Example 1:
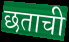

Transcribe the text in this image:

छताची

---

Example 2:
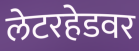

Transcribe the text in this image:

लेटरहेडवर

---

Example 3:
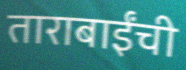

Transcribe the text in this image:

ताराबाईंची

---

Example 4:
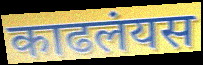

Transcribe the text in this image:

काढलंयस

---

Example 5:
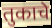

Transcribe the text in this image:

तुकाचे